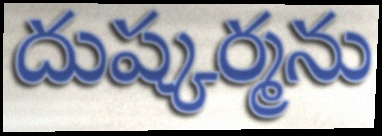
దుష్కర్మను